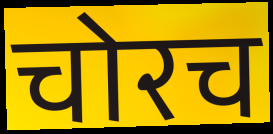
चोरच